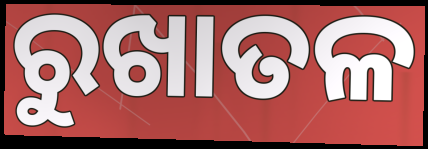
ରୁଖାତଳ